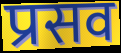
प्रसव